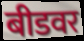
बीडवर